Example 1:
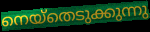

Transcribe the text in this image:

നെയ്തെടുക്കുന്നു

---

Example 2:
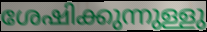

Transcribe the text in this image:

ശേഷിക്കുന്നുള്ളു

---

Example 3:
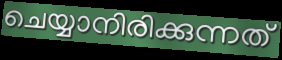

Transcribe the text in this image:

ചെയ്യാനിരിക്കുന്നത്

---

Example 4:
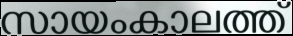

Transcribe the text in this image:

സായംകാലത്ത്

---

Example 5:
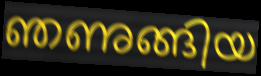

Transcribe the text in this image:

ഞണുങ്ങിയ